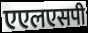
एएलएसपी